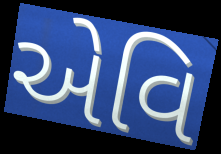
એવિ